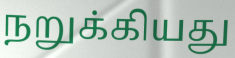
நறுக்கியது